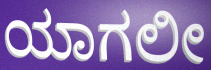
ಯಾಗಲೀ